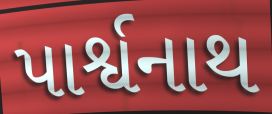
પાર્શ્વનાથ